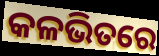
କଳଭିତରେ